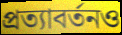
প্রত্যাবর্তনও